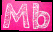
Mb